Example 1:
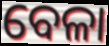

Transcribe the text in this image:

ବେଳା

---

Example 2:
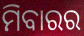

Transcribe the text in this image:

ମିବାରର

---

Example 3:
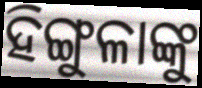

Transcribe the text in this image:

ହିଙ୍ଗୁଳାଙ୍କୁ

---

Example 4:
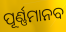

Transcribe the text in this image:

ପୂର୍ଣ୍ଣମାନବ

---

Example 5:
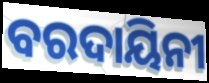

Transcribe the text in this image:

ବରଦାୟିନୀ